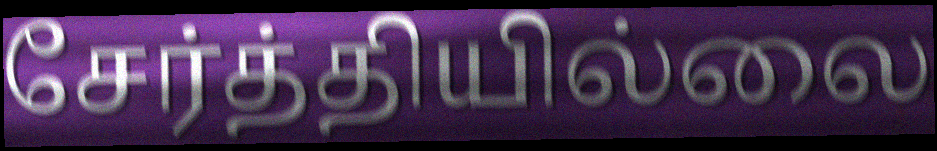
சேர்த்தியில்லை